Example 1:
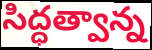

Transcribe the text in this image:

సిద్ధత్వాన్న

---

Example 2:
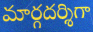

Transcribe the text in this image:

మార్గదర్శిగా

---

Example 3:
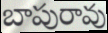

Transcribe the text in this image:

బాపురావు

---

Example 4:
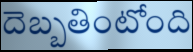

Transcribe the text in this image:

దెబ్బతింటోంది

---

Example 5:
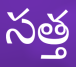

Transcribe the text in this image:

సత్త